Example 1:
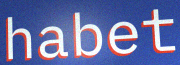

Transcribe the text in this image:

habet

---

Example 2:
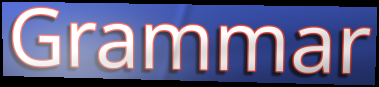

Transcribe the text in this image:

Grammar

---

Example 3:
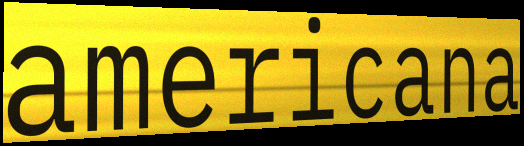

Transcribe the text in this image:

americana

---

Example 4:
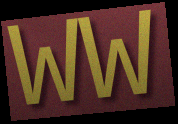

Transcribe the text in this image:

WW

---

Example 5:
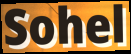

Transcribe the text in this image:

Sohel